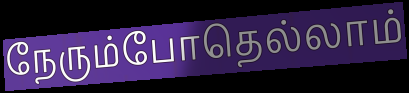
நேரும்போதெல்லாம்